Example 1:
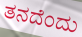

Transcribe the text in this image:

ತನದೆಂದು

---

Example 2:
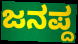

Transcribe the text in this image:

ಜನಪ್ದ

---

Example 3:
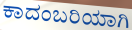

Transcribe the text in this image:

ಕಾದಂಬರಿಯಾಗಿ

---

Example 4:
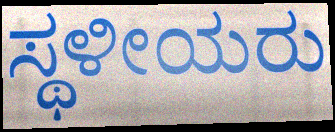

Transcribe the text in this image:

ಸ್ಥಳೀಯರು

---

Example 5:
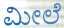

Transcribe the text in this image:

ಮೀಲೆ